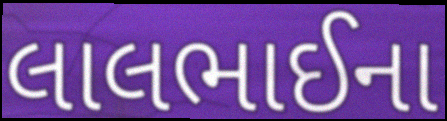
લાલભાઈના